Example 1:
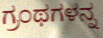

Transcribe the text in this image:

ಗ್ರಂಥಗಳನ್ನ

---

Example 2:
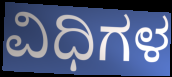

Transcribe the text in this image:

ವಿಧಿಗಳ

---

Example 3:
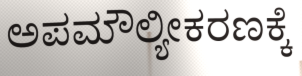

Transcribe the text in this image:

ಅಪಮೌಲ್ಯೀಕರಣಕ್ಕೆ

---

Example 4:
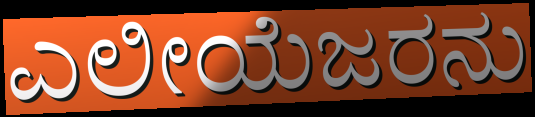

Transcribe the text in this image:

ಎಲೀಯೆಜರನು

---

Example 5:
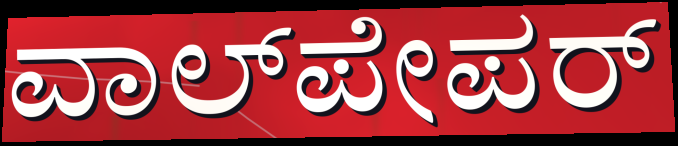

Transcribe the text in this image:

ವಾಲ್‌ಪೇಪರ್